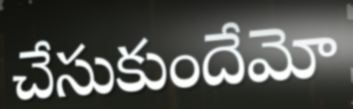
చేసుకుందేమో